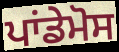
ਪਾਂਡੇਮੋਸ